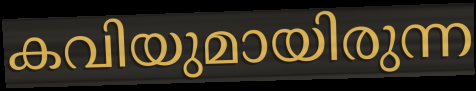
കവിയുമായിരുന്ന